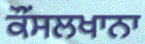
ਕੌਂਸਲਖਾਨਾ